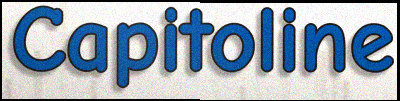
Capitoline